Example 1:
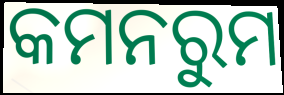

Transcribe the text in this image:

କମନରୁମ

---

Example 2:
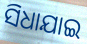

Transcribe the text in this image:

ସିଧାଯାଇ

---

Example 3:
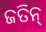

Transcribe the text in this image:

ଜତିନ୍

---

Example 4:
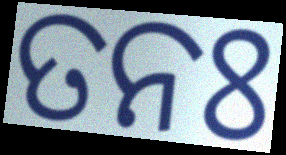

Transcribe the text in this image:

ତନଃ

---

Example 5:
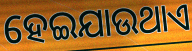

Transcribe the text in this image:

ହେଇଯାଉଥାଏ